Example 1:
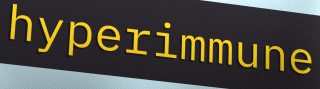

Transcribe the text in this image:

hyperimmune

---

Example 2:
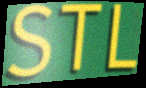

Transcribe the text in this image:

STL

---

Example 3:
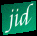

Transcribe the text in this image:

jid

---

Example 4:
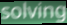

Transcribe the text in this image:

solving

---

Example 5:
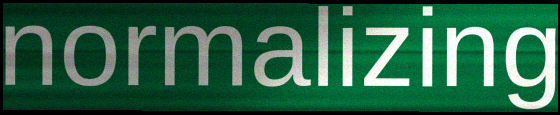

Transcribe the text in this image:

normalizing